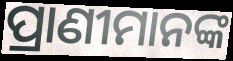
ପ୍ରାଣୀମାନଙ୍କ